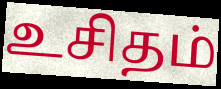
உசிதம்